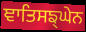
ਞਾਤਿਸਙ੍ਘੇਨ